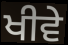
ਖੀਵੇ